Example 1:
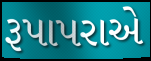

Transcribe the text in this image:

રૂપાપરાએ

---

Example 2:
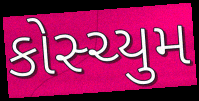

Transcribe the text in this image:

કોસ્ચ્યુમ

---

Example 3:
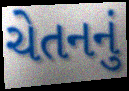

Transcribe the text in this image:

ચેતનનું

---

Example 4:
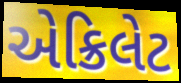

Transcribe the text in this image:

એક્રિલેટ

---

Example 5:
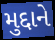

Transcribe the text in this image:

મુદ્દાને